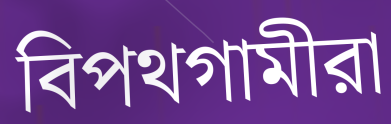
বিপথগামীরা